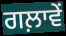
ਗਲ਼ਾਵੇਂ